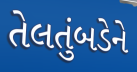
તેલતુંબડેને